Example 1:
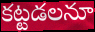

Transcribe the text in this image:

కట్టడలనూ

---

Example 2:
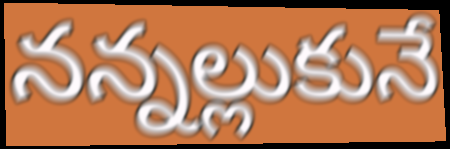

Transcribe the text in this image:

నన్నల్లుకునే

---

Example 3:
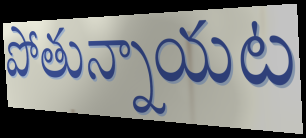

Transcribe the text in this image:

పోతున్నాయట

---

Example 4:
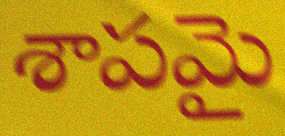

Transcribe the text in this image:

శాపమై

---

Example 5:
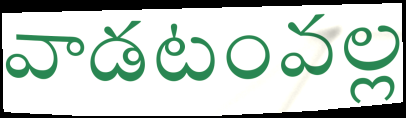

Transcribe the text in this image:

వాడటంవల్ల